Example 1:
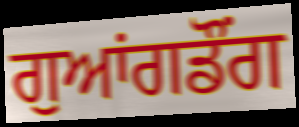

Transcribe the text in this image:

ਗੁਆਂਗਡੌਂਗ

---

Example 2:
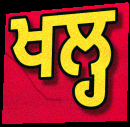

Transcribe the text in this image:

ਖਲ੍ਹ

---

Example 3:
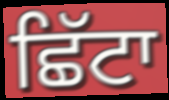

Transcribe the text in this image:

ਛਿੱਟਾ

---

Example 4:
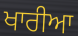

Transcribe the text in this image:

ਖਾਰੀਆ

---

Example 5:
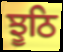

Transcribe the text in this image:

ਝੂਠਿ